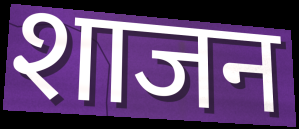
शाजन